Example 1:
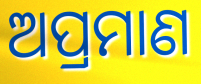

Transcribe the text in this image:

ଅପ୍ରମାଣ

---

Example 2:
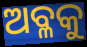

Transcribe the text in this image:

ଅବ୍ଳକୁ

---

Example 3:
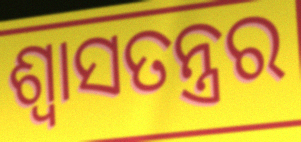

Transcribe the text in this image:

ଶ୍ଵାସତନ୍ତ୍ରର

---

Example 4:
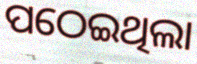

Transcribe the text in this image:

ପଠେଇଥିଲା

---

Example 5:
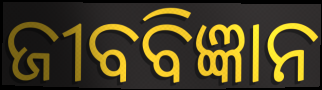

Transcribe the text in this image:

ଜୀବବିଜ୍ଞାନ